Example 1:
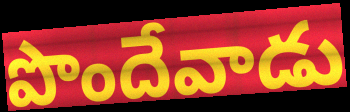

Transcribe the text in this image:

పొందేవాడు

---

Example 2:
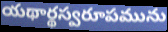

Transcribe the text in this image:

యథార్థస్వరూపమును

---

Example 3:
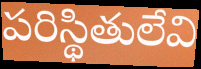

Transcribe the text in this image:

పరిస్థితులేవి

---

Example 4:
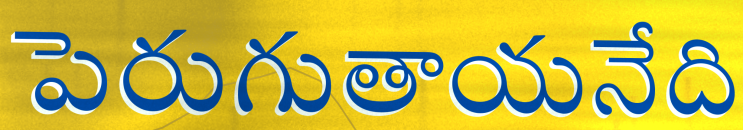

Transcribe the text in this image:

పెరుగుతాయనేది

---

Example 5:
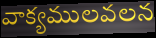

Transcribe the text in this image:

వాక్యములవలన